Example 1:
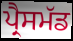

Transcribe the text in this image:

ਪ੍ਰੈਸਮੱਡ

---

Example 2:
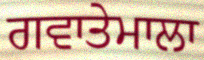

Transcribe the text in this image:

ਗਵਾਤੇਮਾਲਾ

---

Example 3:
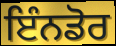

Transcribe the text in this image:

ਇੰਨਡੋਰ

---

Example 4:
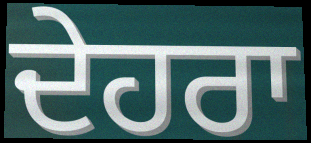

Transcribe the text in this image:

ਦੇਹਰਾ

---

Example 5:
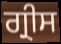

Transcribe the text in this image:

ਗ੍ਰੀਸ